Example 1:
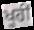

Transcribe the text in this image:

ਖੂਹੀਂ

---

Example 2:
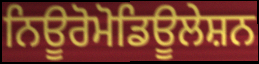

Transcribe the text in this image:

ਨਿਊਰੋਮੋਡਿਊਲੇਸ਼ਨ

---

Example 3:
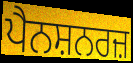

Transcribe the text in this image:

ਪੈਨਸ਼ਨਰਜ਼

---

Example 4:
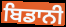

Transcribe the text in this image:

ਬਿਡਾਨੀ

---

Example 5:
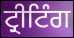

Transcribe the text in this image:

ਟ੍ਰੀਟਿੰਗ